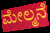
ಮೇಲ್ಮನೆ